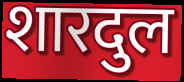
शारदुल